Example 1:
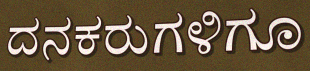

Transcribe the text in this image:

ದನಕರುಗಳಿಗೂ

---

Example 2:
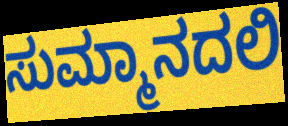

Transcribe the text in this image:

ಸುಮ್ಮಾನದಲಿ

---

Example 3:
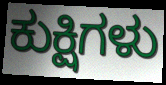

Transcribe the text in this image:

ಕುಕ್ಷಿಗಳು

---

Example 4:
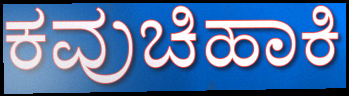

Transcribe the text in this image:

ಕವುಚಿಹಾಕಿ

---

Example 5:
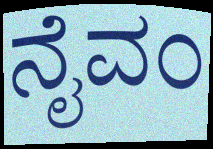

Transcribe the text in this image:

ನೈವಂ